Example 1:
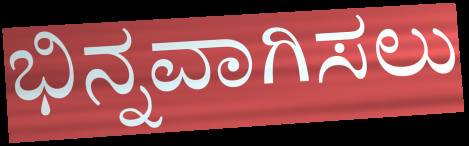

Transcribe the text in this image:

ಭಿನ್ನವಾಗಿಸಲು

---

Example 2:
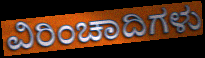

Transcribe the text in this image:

ವಿರಿಂಚಾದಿಗಳು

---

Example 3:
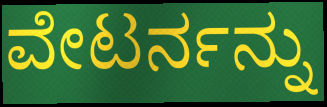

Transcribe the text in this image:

ವೇಟರ್ನನ್ನು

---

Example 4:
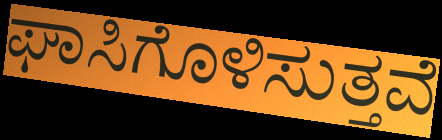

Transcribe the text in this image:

ಘಾಸಿಗೊಳಿಸುತ್ತವೆ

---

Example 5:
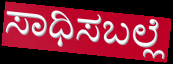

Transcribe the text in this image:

ಸಾಧಿಸಬಲ್ಲೆ